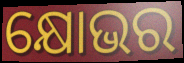
କ୍ଷୋଭର